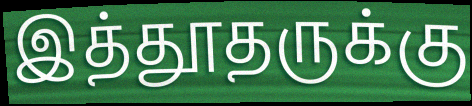
இத்தூதருக்கு